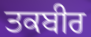
ਤਕਬੀਰ